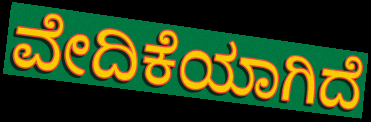
ವೇದಿಕೆಯಾಗಿದೆ